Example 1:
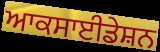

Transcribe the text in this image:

ਆਕਸਾਈਡੇਸ਼ਨ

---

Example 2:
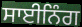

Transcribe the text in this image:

ਸਾਈਨਿੰਗ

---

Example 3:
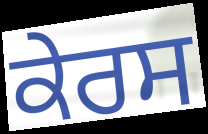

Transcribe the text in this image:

ਕੇਰਸ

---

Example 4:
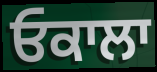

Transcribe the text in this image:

ਓਕਾਲਾ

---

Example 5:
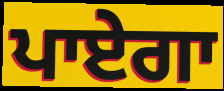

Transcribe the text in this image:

ਪਾਏਗਾ